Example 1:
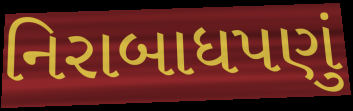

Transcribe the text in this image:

નિરાબાધપણું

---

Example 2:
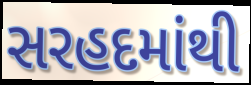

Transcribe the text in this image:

સરહદમાંથી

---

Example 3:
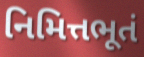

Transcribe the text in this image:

નિમિત્તભૂતં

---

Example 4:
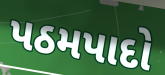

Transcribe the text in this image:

પઠમપાદો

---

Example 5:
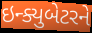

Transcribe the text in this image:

ઇન્ક્યુબેટરને